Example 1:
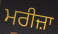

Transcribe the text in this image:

ਮਰੀਜ਼ਾ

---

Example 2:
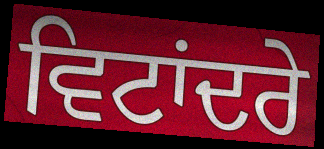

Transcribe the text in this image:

ਵਿਟਾਂਦਰੇ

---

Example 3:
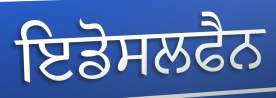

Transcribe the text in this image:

ਇਡੋਸਲਫੈਨ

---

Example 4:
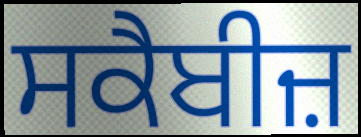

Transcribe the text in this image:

ਸਕੈਬੀਜ਼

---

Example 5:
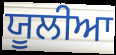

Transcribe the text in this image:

ਯੂਲੀਆ